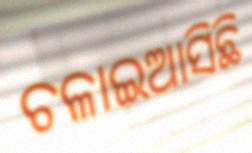
ଚଳାଇଆସିଛି